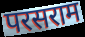
परसराम